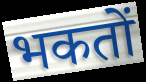
भकतों